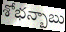
శోభన్బాబు